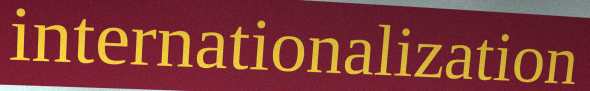
internationalization